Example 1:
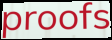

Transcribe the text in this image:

proofs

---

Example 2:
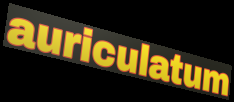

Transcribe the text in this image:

auriculatum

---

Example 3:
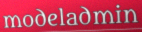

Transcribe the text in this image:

modeladmin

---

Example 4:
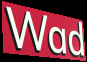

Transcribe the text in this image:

Wad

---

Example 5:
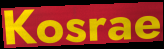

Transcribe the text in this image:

Kosrae